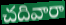
చదివారా